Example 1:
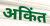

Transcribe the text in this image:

अकिंत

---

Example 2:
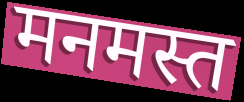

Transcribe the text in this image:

मनमस्त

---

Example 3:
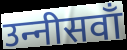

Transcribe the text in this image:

उन्नीसवाँ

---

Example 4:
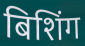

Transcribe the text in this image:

बिशिंग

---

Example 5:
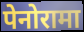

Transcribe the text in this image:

पेनोरामा